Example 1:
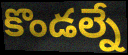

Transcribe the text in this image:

కొండల్నే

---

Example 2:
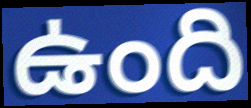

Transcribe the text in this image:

ఉంది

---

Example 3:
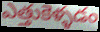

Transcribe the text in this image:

ఎత్తుకెళ్ళడం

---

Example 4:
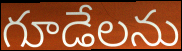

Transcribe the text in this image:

గూడేలను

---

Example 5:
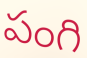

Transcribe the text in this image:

పంగి